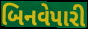
બિનવેપારી